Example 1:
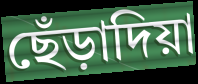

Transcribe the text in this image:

ছেঁড়াদিয়া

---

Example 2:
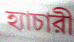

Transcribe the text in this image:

হ্যাচারী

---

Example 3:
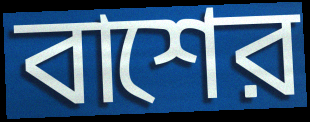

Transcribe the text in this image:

বাশের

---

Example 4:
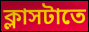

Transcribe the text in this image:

ক্লাসটাতে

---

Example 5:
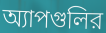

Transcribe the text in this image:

অ্যাপগুলির